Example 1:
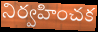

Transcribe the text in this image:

నిర్వహించక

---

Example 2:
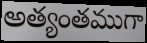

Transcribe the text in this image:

అత్యంతముగా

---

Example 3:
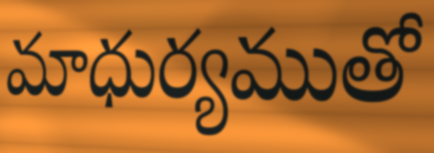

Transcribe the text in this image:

మాధుర్యముతో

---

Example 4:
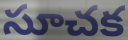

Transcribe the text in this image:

సూచక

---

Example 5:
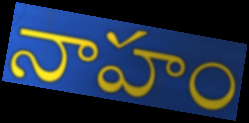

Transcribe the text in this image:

నాహం